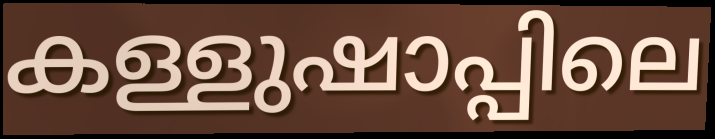
കള്ളുഷാപ്പിലെ